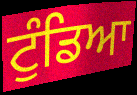
ਟੁੰਡਿਆ